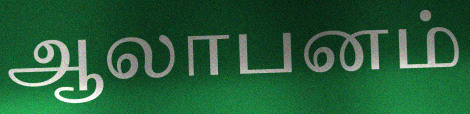
ஆலாபனம்